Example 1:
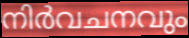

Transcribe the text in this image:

നിർവചനവും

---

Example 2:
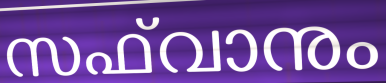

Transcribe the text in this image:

സഫ്‌വാനും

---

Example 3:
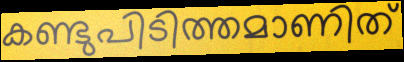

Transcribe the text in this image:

കണ്ടുപിടിത്തമാണിത്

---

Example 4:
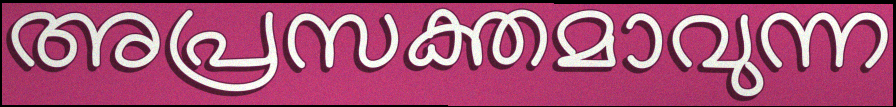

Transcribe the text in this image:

അപ്രസക്തമാവുന്ന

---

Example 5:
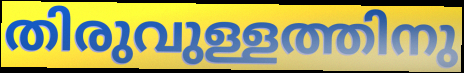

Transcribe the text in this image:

തിരുവുള്ളത്തിനു